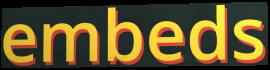
embeds